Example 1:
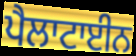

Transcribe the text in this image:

ਪੈਲਾਟਾਈਨ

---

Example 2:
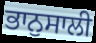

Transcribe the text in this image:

ਭਾਨੁਸਾਲੀ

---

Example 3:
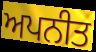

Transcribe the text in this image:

ਅਪਨੀਤ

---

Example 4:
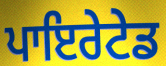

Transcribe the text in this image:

ਪਾਇਰੇਟੇਡ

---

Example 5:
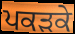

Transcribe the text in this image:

ਪਕੜਕੇ